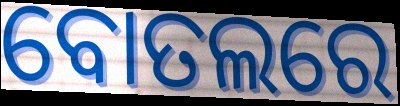
ବୋତଲରେ